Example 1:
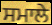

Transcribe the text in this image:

ਸਮਾਲੇ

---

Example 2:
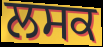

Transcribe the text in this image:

ਲਸਕ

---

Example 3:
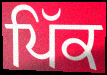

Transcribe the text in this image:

ਪਿੱਕ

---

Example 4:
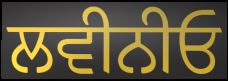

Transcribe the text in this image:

ਲਵੀਨੀਓ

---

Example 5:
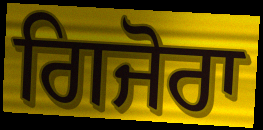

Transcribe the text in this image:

ਗਿਜੋਰਾ